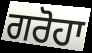
ਗਰੋਹਾ